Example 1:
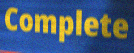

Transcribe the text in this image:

Complete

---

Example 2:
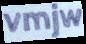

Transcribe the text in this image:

vmjw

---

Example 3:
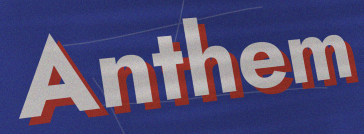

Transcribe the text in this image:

Anthem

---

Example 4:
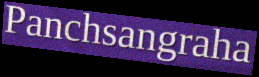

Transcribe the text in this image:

Panchsangraha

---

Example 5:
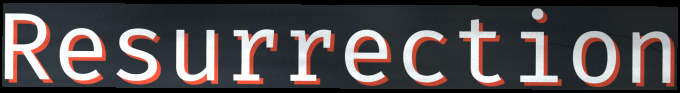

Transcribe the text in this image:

Resurrection